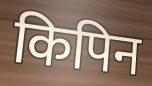
किपिन